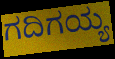
ಗದಿಗಯ್ಯ